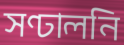
সণ্ঢালনি